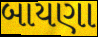
બાયણા